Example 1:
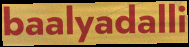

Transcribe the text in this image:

baalyadalli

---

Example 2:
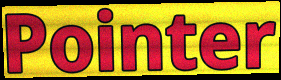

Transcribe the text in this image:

Pointer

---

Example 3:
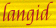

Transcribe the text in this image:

langid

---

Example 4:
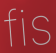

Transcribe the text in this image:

fis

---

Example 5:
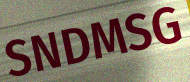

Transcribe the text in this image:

SNDMSG